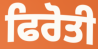
ਫਿਰੋਤੀ